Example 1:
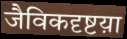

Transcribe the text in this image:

जैविकदृष्टय़ा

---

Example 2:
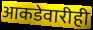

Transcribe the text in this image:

आकडेवारीही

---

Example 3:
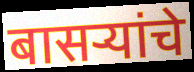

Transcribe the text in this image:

बासऱ्यांचे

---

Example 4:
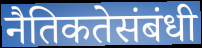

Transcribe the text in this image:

नैतिकतेसंबंधी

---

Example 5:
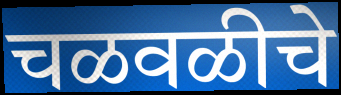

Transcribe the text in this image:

चळवळीचे